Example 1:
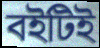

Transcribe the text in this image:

বইটিই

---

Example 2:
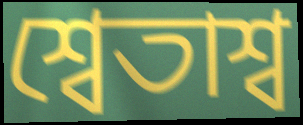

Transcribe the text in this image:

শ্বেতাশ্ব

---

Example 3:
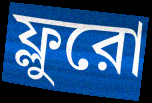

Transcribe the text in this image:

ফ্লুরো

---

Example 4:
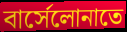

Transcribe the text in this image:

বার্সেলোনাতে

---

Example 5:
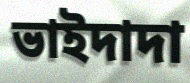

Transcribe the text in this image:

ভাইদাদা